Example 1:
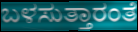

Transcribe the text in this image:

ಬಳಸುತ್ತಾರಂತೆ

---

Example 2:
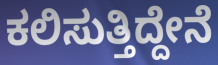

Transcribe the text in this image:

ಕಲಿಸುತ್ತಿದ್ದೇನೆ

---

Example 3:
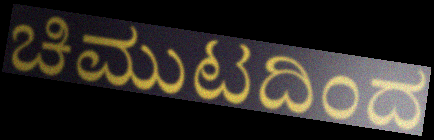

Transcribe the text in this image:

ಚಿಮುಟದಿಂದ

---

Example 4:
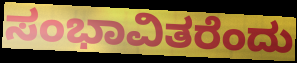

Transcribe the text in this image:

ಸಂಭಾವಿತರೆಂದು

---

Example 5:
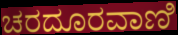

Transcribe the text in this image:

ಚರದೂರವಾಣಿ